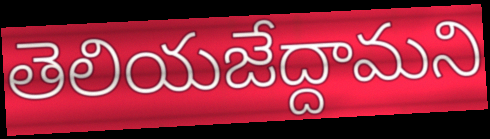
తెలియజేద్దామని